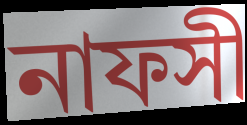
নাফসী